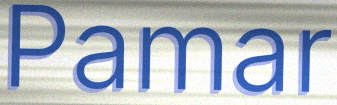
Pamar